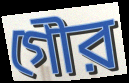
গৌর